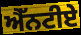
ਐੱਨਟੀਏ